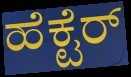
ಹೆಕ್ಟೆರ್